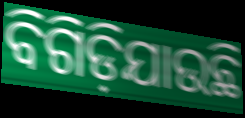
ବିଗିଡ଼ିଯାଉଛି